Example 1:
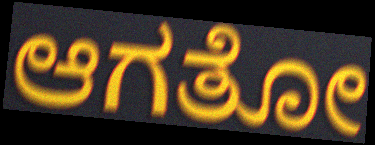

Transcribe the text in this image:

ಆಗತೋ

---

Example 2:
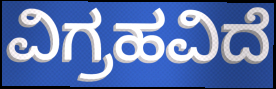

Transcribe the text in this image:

ವಿಗ್ರಹವಿದೆ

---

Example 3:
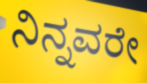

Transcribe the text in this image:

ನಿನ್ನವರೇ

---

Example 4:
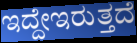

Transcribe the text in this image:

ಇದ್ದೇಇರುತ್ತದೆ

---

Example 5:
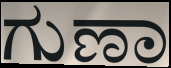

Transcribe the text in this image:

ಗುಣಾ